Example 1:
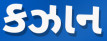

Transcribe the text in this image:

કઝાન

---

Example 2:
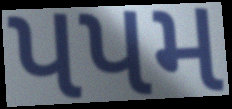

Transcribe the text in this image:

પપમ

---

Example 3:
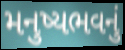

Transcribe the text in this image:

મનુષ્યભવનું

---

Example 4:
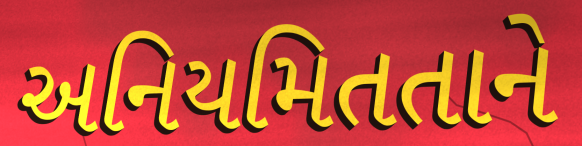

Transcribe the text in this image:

અનિયમિતતાને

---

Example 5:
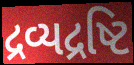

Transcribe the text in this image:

દ્રવ્યદ્રષ્ટિ